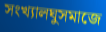
সংখ্যালঘুসমাজে